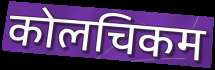
कोलचिकम